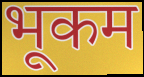
भूकम